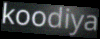
koodiya